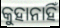
କୁହାନାହିଁ